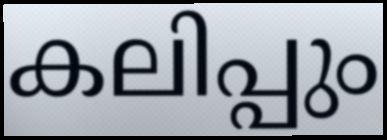
കലിപ്പും